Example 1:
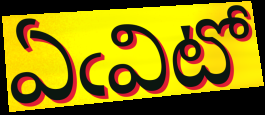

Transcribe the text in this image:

ఏఁవిటో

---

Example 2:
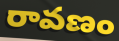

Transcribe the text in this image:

రావణం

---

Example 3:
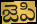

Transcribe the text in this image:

జెపి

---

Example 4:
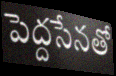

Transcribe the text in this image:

పెద్దసేనతో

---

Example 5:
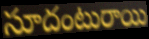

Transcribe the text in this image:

సూదంటురాయి